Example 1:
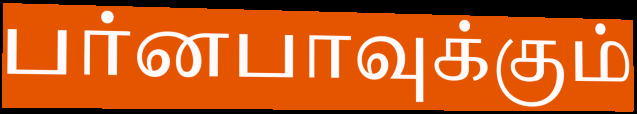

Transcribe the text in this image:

பர்னபாவுக்கும்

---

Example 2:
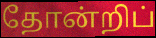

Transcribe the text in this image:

தோன்றிப்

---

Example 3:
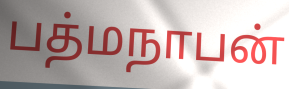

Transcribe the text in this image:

பத்மநாபன்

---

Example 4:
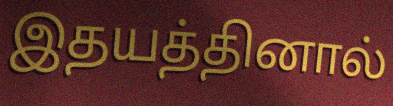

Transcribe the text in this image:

இதயத்தினால்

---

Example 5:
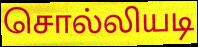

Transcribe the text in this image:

சொல்லியடி